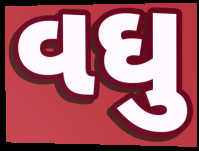
વઘુ